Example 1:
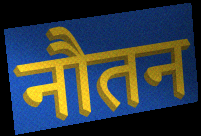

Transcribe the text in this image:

नौतन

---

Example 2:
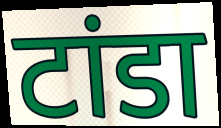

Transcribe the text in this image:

टांडा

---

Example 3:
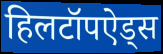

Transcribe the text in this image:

हिलटॉपऐड्स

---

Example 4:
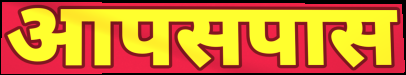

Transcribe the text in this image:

आपसपास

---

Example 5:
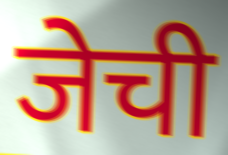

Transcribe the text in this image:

जेची